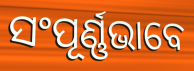
ସଂପୂର୍ଣ୍ଣଭାବେ